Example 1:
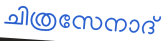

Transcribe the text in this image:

ചിത്രസേനാദ്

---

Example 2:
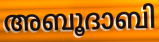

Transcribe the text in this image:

അബൂദാബി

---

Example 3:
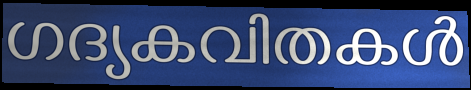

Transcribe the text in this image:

ഗദ്യകവിതകൾ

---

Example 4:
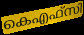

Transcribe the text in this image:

കെഎഫ്സി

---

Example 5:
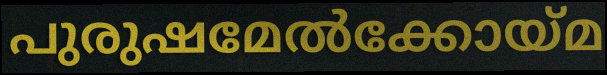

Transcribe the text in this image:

പുരുഷമേൽക്കോയ്മ